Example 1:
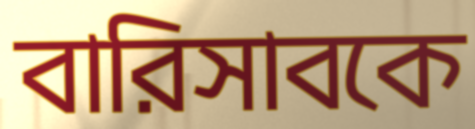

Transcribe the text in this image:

বারিসাবকে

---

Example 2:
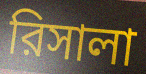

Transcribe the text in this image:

রিসালা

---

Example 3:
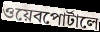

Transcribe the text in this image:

ওয়েবপোর্টালে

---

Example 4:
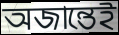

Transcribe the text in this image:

অজান্তেই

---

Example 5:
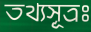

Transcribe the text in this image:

তথ্যসূত্রঃ